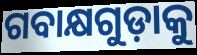
ଗବାକ୍ଷଗୁଡ଼ାକୁ